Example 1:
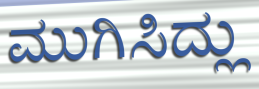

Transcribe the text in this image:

ಮುಗಿಸಿದ್ಲು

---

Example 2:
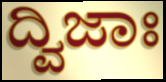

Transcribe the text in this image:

ದ್ವಿಜಾಃ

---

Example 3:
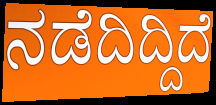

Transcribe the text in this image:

ನಡೆದಿದ್ದಿದೆ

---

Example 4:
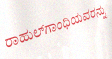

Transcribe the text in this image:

ರಾಹುಲ್‌ಗಾಂಧಿಯವರನ್ನು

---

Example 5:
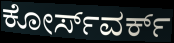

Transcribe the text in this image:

ಕೋರ್ಸ್‌ವರ್ಕ್